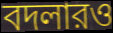
বদলারও